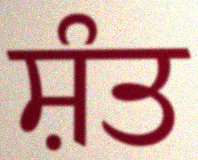
ਸ਼ੰਤ